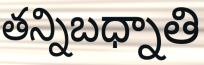
తన్నిబధ్నాతి